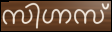
സിഗ്നസ്